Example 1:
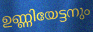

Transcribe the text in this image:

ഉണ്ണിയേട്ടനും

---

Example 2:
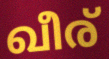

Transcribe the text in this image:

ഖീര്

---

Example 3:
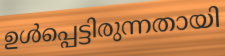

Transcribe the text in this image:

ഉൾപ്പെട്ടിരുന്നതായി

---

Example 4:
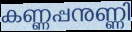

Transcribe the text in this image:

കണ്ണപ്പനുണ്ണി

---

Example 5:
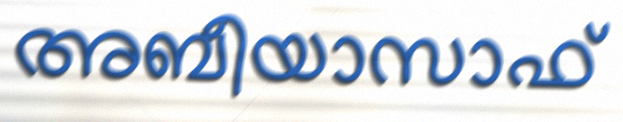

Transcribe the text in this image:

അബീയാസാഫ്